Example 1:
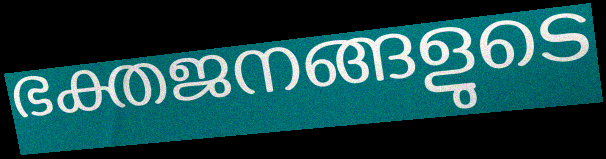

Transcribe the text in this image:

ഭക്തജനങ്ങളുടെ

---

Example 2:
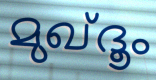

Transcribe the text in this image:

മുഖ്ദൂം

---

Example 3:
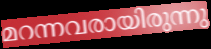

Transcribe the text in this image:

മറന്നവരായിരുന്നു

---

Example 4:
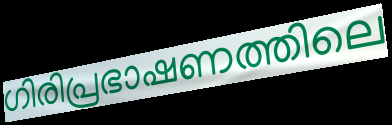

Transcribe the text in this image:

ഗിരിപ്രഭാഷണത്തിലെ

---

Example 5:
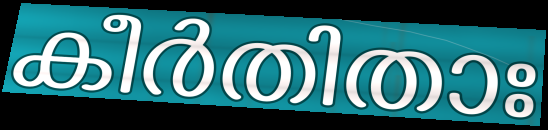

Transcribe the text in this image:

കീർതിതാഃ